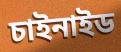
চাইনাইড